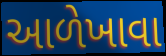
આળેખાવા